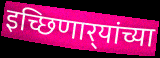
इच्छिणार्‍यांच्या